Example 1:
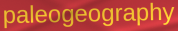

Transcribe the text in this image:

paleogeography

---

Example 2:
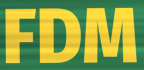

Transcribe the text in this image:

FDM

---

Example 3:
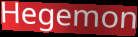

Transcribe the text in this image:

Hegemon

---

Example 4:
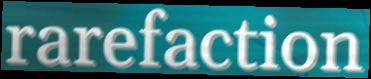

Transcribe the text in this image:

rarefaction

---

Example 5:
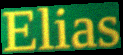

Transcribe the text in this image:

Elias